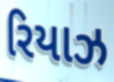
રિયાઝ